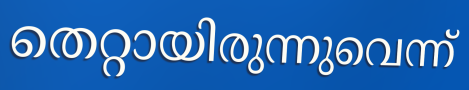
തെറ്റായിരുന്നുവെന്ന്